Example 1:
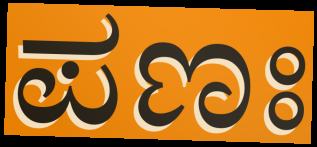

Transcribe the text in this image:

ಪಣಃ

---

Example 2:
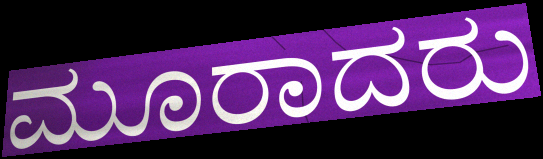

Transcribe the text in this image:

ಮೂರಾದರು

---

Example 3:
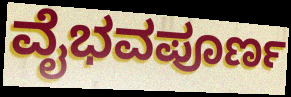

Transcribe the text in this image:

ವೈಭವಪೂರ್ಣ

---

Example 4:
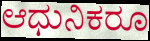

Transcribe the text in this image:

ಆಧುನಿಕರೂ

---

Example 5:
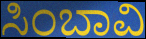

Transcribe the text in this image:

ಸಿಂಬಾವಿ